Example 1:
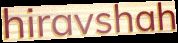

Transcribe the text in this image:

hiravshah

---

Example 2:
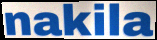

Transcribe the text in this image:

nakila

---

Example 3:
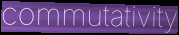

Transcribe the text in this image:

commutativity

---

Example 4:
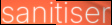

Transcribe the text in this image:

sanitiser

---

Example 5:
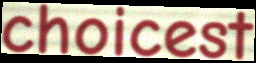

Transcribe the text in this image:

choicest